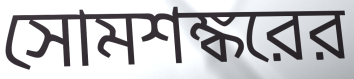
সোমশঙ্করের